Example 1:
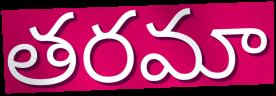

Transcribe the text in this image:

తరమా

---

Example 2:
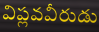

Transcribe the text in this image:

విప్లవవీరుడు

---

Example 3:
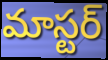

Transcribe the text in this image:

మాస్టర్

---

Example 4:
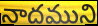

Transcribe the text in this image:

నాదముని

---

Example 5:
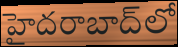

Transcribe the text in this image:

హైదరాబాద్‌లో